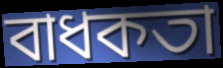
বাধকতা